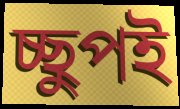
চ্ছুপই